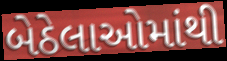
બેઠેલાઓમાંથી